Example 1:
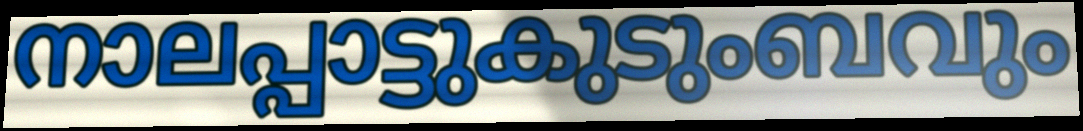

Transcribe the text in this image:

നാലപ്പാട്ടുകുടുംബവും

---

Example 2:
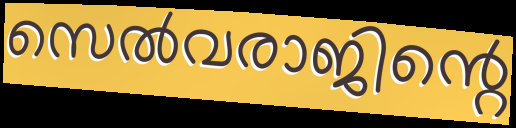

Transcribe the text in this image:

സെൽവരാജിന്റെ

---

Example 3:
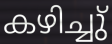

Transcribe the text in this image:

കഴിച്ചു്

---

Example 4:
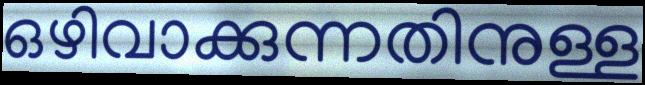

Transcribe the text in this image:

ഒഴിവാക്കുന്നതിനുള്ള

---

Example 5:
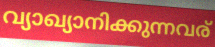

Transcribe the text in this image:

വ്യാഖ്യാനിക്കുന്നവര്